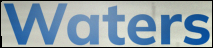
Waters